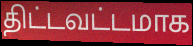
திட்டவட்டமாக